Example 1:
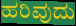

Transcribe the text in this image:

ಹರಿವುದು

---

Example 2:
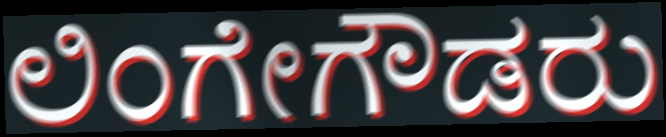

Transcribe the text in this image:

ಲಿಂಗೇಗೌಡರು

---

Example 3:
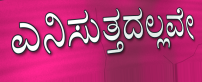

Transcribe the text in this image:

ಎನಿಸುತ್ತದಲ್ಲವೇ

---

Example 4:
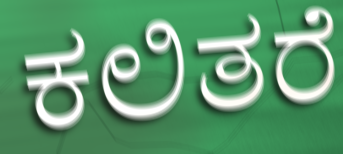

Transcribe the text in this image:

ಕಲಿತರೆ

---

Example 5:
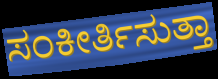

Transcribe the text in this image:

ಸಂಕೀರ್ತಿಸುತ್ತಾ